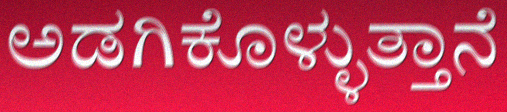
ಅಡಗಿಕೊಳ್ಳುತ್ತಾನೆ